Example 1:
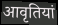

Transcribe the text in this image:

आवृतियां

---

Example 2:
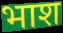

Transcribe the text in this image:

भाश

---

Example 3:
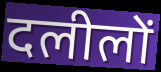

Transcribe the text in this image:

दलीलों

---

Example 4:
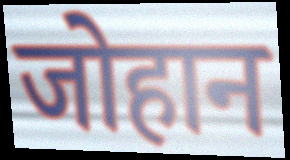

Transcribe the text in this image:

जोहान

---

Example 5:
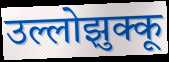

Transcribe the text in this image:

उल्लोझुक्कू